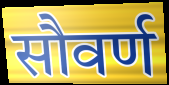
सौवर्ण